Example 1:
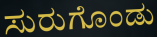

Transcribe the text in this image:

ಸುರುಗೊಂಡು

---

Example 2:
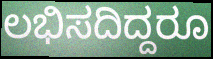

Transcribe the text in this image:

ಲಭಿಸದಿದ್ದರೂ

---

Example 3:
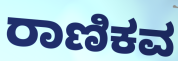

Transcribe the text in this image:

ರಾಣಿಕವ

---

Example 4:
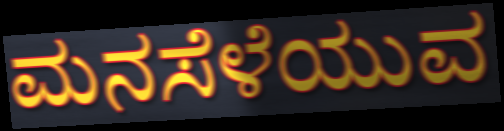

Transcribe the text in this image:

ಮನಸೆಳೆಯುವ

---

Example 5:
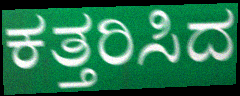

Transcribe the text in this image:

ಕತ್ತರಿಸಿದ